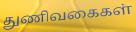
துணிவகைகள்